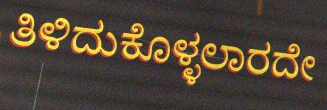
ತಿಳಿದುಕೊಳ್ಳಲಾರದೇ